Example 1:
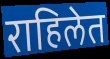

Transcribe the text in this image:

राहिलेत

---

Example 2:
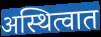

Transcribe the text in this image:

अस्थित्वात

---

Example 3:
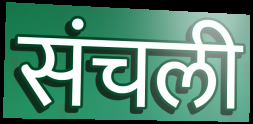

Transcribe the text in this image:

संचली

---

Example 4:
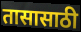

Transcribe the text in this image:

तासासाठी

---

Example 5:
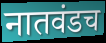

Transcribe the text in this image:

नातवंडच